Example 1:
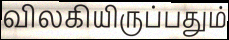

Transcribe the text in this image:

விலகியிருப்பதும்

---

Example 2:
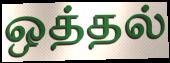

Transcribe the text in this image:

ஒத்தல்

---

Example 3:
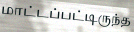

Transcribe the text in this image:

மாட்டப்பட்டிருந்த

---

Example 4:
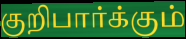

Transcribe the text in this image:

குறிபார்க்கும்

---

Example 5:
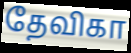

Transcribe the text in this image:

தேவிகா